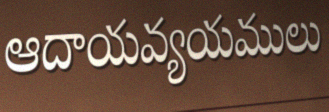
ఆదాయవ్యయములు